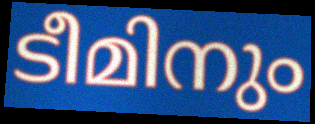
ടീമിനും